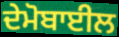
ਦੇਮੋਬਾਈਲ